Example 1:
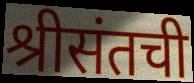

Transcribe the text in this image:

श्रीसंतची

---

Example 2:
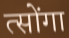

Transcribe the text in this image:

त्सोंगा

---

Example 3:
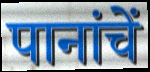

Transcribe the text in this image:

पानांचें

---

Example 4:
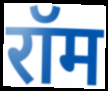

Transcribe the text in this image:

रॉम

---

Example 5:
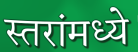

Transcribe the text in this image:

स्तरांमध्ये